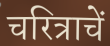
चरित्राचें